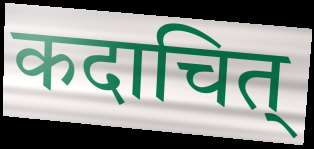
कदाचित्